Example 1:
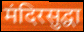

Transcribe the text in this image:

मंदिरसुद्धा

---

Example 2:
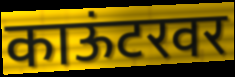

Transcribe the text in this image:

काऊंटरवर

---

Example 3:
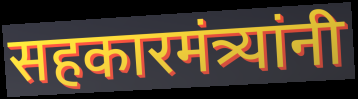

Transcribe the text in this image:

सहकारमंत्र्यांनी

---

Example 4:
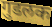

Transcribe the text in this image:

गुडलक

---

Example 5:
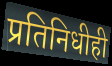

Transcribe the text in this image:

प्रतिनिधीही